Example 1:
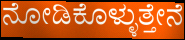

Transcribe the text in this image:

ನೋಡಿಕೊಳ್ಳುತ್ತೇನೆ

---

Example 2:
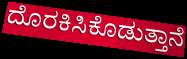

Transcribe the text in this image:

ದೊರಕಿಸಿಕೊಡುತ್ತಾನೆ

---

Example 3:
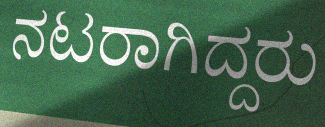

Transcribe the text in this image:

ನಟರಾಗಿದ್ದರು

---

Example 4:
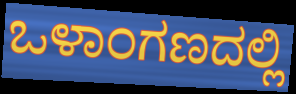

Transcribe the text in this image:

ಒಳಾಂಗಣದಲ್ಲಿ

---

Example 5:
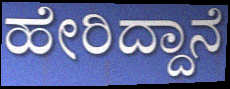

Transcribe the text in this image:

ಹೇರಿದ್ದಾನೆ